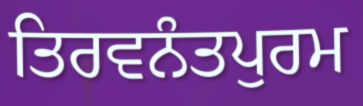
ਤਿਰਵਨੰਤਪੁਰਮ